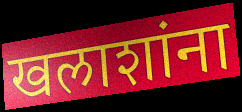
खलाशांना